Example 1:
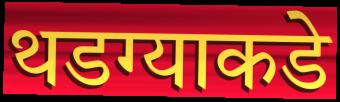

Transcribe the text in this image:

थडग्याकडे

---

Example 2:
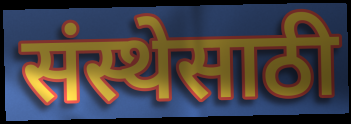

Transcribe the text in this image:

संस्थेसाठी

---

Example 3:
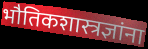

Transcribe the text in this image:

भौतिकशास्त्रज्ञांना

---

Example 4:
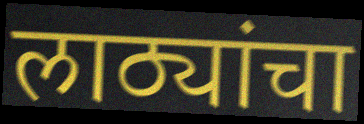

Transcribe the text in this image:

लाठ्यांचा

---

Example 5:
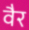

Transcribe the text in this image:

वैर